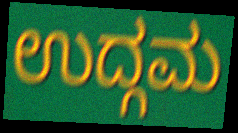
ಉದ್ಗಮ